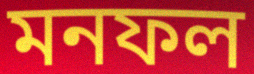
মনফল